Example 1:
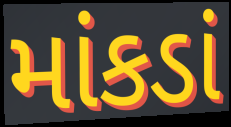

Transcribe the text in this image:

માંકડાં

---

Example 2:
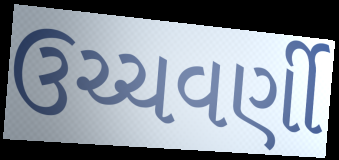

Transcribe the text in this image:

ઉચ્ચવર્ણી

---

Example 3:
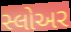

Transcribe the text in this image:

સ્લોઅર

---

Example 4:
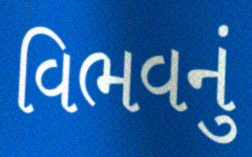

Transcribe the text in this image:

વિભવનું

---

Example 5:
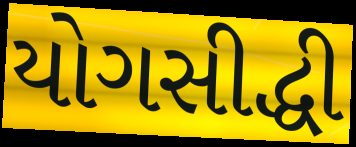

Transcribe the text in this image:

યોગસીદ્ધી